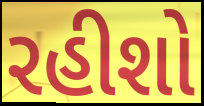
રહીશો